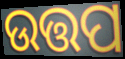
ଉତ୍ତପ